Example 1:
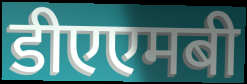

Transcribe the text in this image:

डीएएमबी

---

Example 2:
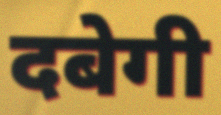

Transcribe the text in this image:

दबेगी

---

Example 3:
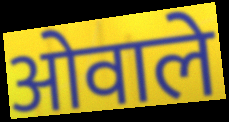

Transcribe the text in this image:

ओवाले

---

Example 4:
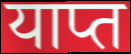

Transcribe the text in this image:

याप्त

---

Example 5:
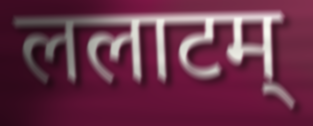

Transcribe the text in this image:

ललाटम्